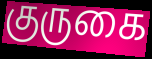
குருகை